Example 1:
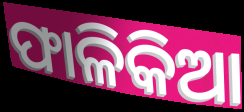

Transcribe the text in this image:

ଫାଳିକିଆ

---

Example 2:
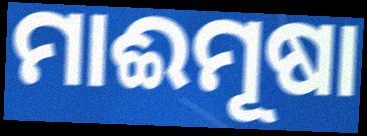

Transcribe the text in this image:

ମାଈମୂଷା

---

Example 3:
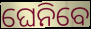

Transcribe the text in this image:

ଘେନିବେ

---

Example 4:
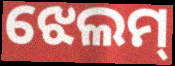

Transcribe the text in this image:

ଝେଲମ୍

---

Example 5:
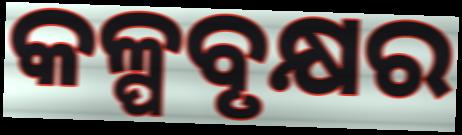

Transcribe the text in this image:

କଳ୍ପବୃକ୍ଷର